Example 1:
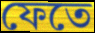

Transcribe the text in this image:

ফেতে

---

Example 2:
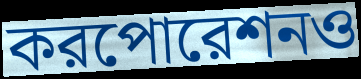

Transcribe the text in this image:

করপোরেশনও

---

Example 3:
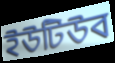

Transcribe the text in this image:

ইউটিউব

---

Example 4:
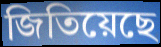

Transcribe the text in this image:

জিতিয়েছে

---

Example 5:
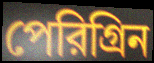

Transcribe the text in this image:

পেরিগ্রিন